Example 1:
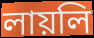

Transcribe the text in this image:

লায়লি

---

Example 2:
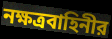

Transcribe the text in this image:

নক্ষত্রবাহিনীর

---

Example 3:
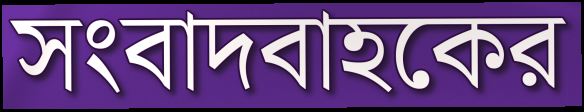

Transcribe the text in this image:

সংবাদবাহকের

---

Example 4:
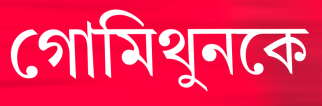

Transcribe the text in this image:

গোমিথুনকে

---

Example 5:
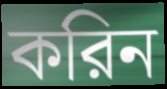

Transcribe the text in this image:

করিন